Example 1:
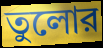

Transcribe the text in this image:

তুলোর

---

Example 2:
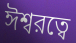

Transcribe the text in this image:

ঈশ্বরত্বে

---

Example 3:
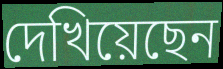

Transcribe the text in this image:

দেখিয়েছেন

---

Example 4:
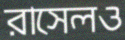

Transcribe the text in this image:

রাসেলও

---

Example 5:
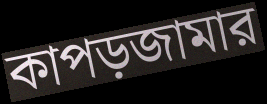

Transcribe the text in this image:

কাপড়জামার